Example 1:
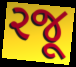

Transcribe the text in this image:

રજૂ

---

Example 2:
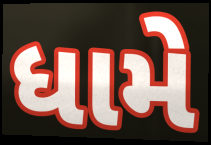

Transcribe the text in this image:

ધામે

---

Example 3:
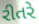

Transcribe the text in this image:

રીતરે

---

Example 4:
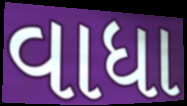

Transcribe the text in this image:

વાધા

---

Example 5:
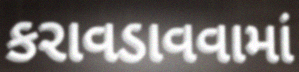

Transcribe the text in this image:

કરાવડાવવામાં